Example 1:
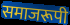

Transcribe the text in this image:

समाजरूपी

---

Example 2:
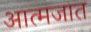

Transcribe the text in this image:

आत्मजात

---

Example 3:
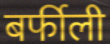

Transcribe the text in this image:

बर्फीली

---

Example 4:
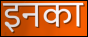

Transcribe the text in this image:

इनका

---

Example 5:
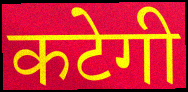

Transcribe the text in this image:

कटेगी